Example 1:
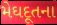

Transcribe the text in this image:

મેઘદૂતના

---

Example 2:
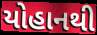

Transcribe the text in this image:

યોહાનથી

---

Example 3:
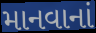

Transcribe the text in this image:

માનવાનાં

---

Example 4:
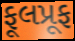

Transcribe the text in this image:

ફૂલપ્રૂફ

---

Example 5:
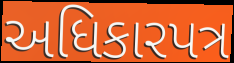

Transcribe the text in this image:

અધિકારપત્ર